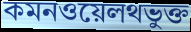
কমনওয়েলথভুক্ত